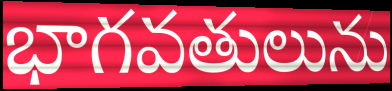
భాగవతులును